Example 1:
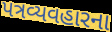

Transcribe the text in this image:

પત્રવ્યવહારના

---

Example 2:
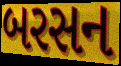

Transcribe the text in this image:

બરસન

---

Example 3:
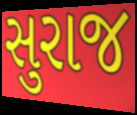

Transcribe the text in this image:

સુરાજ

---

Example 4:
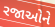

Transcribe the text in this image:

રજાઓને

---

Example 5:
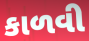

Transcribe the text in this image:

કાળવી